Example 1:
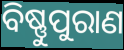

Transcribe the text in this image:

ବିଷ୍ଣୁପୁରାଣ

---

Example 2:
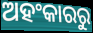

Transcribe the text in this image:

ଅହଂକାରରୁ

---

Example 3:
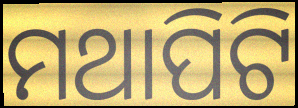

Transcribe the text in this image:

ମଥାପିଟି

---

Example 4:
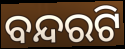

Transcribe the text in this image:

ବନ୍ଦରଟି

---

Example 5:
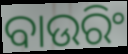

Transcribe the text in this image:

ବାଉରିଂ